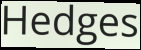
Hedges